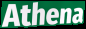
Athena